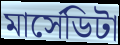
মার্সেডিটা